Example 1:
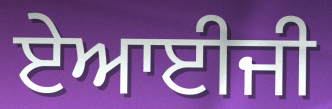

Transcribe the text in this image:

ਏਆਈਜੀ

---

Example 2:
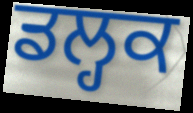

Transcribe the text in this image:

ਡਲ੍ਹਕ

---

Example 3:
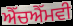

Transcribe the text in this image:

ਐੱਚਐੱਮਵੀ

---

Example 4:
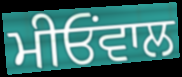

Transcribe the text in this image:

ਮੀਓਂਵਾਲ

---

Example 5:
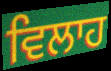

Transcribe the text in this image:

ਵਿਲਾਹ